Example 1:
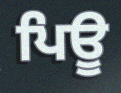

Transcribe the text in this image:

ਪਿਊ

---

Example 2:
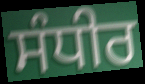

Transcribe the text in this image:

ਸੰਧੀਰ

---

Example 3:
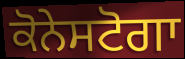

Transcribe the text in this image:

ਕੋਨੇਸਟੋਗਾ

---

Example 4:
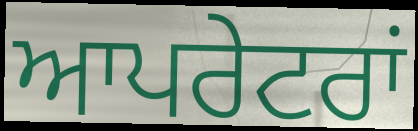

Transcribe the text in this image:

ਆਪਰੇਟਰਾਂ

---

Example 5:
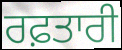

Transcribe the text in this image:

ਰਫ਼ਤਾਰੀ